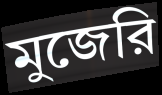
মুজেরি